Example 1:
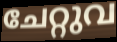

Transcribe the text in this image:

ചേറ്റുവ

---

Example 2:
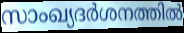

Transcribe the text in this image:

സാംഖ്യദർശനത്തിൽ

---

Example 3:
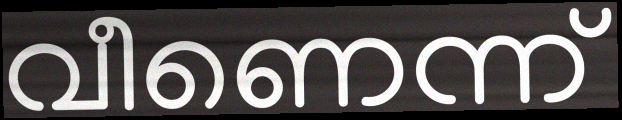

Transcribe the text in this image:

വീണെന്ന്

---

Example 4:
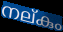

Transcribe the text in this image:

നല്‌കും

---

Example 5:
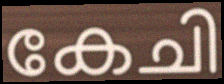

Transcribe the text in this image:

കേചി